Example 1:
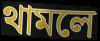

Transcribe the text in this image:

থামলে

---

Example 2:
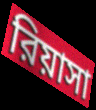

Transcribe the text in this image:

রিয়াসা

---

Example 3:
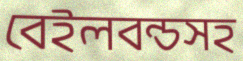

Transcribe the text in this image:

বেইলবন্ডসহ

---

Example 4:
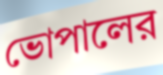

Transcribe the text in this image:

ভোপালের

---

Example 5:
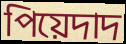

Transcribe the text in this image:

পিয়েদাদ